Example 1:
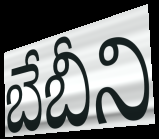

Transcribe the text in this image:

బేబీని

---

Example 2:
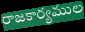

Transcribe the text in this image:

రాజకార్యముల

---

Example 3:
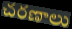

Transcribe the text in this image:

చరణాలు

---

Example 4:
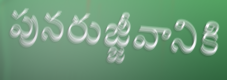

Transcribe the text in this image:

పునరుజ్జీవానికి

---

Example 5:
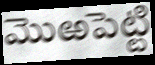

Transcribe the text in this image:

మొఱపెట్టి